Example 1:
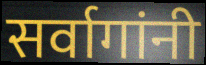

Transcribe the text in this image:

सर्वागांनी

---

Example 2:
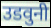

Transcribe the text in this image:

उडवुनी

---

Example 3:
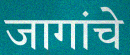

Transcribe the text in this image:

जागांचे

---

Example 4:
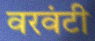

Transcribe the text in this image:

वरवंटी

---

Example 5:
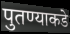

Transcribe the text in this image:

पुतण्याकडे